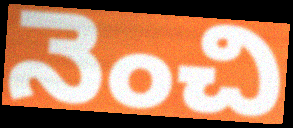
నెంచి